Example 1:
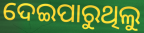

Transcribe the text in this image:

ଦେଇପାରୁଥିଲୁ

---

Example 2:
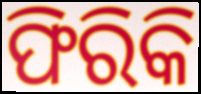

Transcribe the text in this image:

ଫିରିକି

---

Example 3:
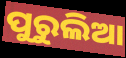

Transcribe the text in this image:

ପୁରୁଲିଆ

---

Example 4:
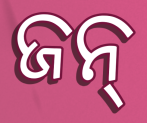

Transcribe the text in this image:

ଜନ୍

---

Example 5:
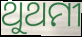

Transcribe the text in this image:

ଥୁଥମୀ